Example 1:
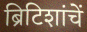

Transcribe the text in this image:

ब्रिटिशांचें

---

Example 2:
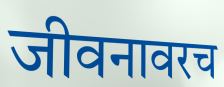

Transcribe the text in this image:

जीवनावरच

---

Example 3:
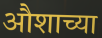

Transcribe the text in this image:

औशाच्या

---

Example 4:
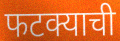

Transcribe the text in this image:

फटक्याची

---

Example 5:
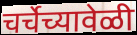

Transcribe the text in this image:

चर्चेच्यावेळी